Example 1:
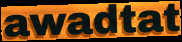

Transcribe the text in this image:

awadtat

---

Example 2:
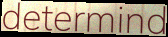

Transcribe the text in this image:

determind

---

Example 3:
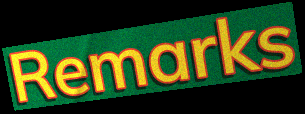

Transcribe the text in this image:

Remarks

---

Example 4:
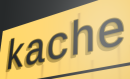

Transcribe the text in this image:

kache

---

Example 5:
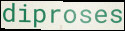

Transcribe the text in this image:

diproses